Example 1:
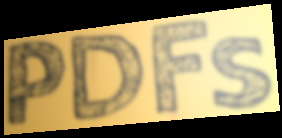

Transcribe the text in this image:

PDFs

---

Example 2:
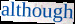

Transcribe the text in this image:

although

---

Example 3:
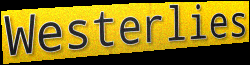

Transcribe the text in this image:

Westerlies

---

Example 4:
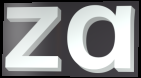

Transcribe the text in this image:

za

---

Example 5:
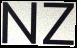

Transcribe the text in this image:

NZ